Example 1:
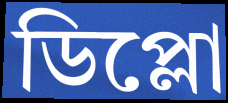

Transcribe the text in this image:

ডিপ্লো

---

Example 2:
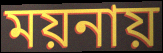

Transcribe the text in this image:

ময়নায়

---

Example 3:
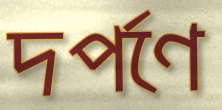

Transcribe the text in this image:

দর্পণে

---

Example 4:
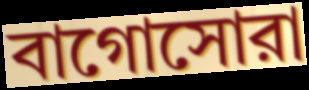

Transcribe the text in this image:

বাগোসোরা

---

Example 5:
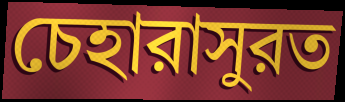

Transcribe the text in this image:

চেহারাসুরত